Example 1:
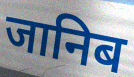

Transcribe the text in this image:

जानिब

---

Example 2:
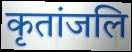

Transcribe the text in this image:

कृतांजलि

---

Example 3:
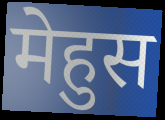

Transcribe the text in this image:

मेहुस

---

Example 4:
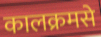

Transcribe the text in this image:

कालक्रमसे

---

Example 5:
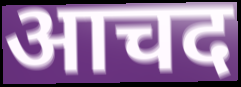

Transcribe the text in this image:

आचद